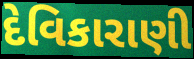
દેવિકારાણી